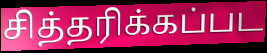
சித்தரிக்கப்பட